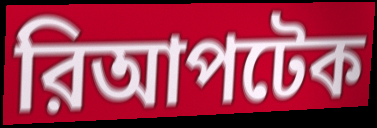
রিআপটেক